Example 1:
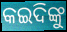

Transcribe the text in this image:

କଇଦିଙ୍କୁ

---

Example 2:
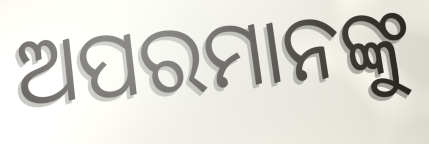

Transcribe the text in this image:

ଅପରମାନଙ୍କୁ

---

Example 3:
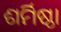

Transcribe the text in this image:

ଶର୍ମିଷ୍ଠା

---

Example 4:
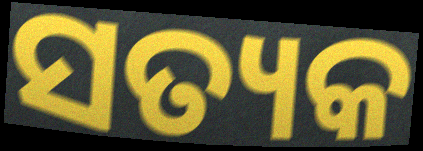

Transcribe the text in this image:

ସତ୍ୟକ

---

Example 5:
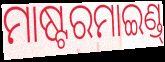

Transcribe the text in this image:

ମାଷ୍ଟରମାଇଣ୍ଡ୍